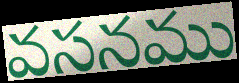
వసనము